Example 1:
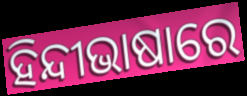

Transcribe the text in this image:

ହିନ୍ଦୀଭାଷାରେ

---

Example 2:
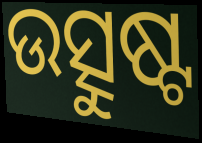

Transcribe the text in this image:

ଉତ୍ସୁଷ୍ଟ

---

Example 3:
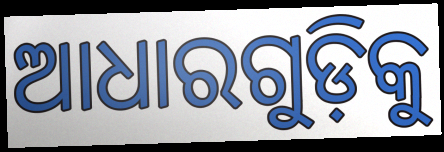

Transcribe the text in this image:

ଆଧାରଗୁଡ଼ିକୁ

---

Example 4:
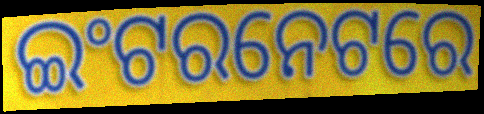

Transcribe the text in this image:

ଇଂଟରନେଟରେ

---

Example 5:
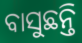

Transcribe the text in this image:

ବାସୁଛନ୍ତି